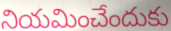
నియమించేందుకు